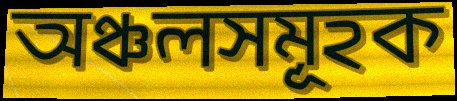
অঞ্চলসমূহক